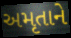
અમૃતાને